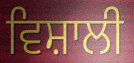
ਵਿਸ਼ਾਲੀ